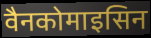
वैनकोमाइसिन